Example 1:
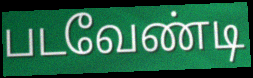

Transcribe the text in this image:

படவேண்டி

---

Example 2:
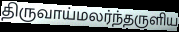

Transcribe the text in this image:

திருவாய்மலர்ந்தருளிய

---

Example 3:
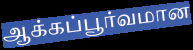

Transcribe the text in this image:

ஆக்கப்பூர்வமான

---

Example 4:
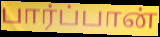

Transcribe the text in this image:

பார்ப்பான்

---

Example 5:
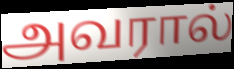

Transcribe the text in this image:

அவரால்